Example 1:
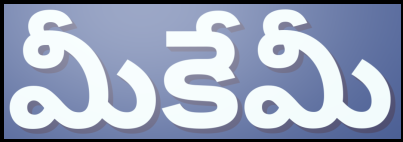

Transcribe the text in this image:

మీకేమీ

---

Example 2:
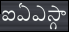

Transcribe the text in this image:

ఐఏఎస్గా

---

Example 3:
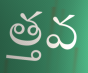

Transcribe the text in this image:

త్తవ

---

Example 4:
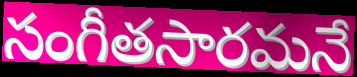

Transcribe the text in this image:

సంగీతసారమనే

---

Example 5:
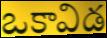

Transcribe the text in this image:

ఒకావిడ